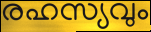
രഹസ്യവും